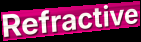
Refractive